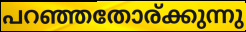
പറഞ്ഞതോര്ക്കുന്നു